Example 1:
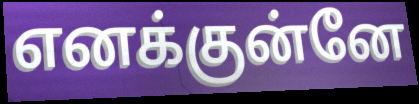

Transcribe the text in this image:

எனக்குன்னே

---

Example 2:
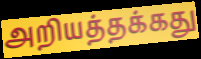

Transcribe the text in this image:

அறியத்தக்கது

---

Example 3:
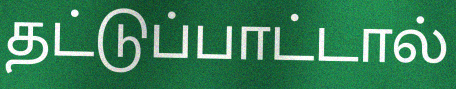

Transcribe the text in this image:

தட்டுப்பாட்டால்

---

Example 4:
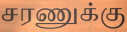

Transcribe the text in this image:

சரணுக்கு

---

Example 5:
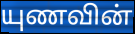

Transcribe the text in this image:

யுணவின்